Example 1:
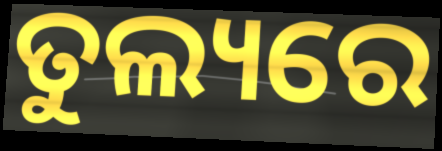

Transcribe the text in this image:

ତୁଲ୍ୟରେ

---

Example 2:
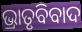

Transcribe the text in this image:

ଭ୍ରାତୃବିବାଦ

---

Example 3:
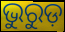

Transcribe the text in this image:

ଭୁରୁଡ଼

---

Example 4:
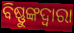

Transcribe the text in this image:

ବିଷ୍ଣୁଙ୍କଦ୍ୱାରା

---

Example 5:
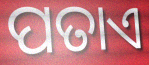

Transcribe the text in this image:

ପତାଏ